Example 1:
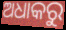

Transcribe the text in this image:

ଅଧାକରୁ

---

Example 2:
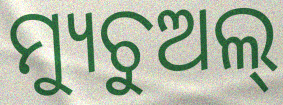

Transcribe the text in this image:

ମ୍ୟୁଚୁଅଲ୍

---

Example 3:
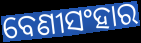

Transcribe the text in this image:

ବେଣୀସଂହାର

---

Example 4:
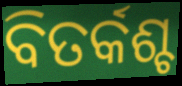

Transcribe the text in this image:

ବିତର୍କଶ୍ଚ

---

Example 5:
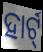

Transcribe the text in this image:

ହାର୍ଟ୍